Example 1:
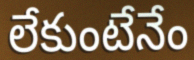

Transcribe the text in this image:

లేకుంటేనేం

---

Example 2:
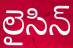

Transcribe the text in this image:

లైసిన్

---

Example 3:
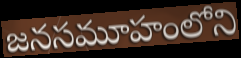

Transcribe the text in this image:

జనసమూహంలోని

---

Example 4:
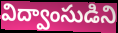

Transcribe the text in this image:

విద్వాంసుడిని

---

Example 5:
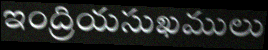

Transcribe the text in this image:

ఇంద్రియసుఖములు